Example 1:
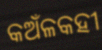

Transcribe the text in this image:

କଅଁଳକହୀ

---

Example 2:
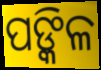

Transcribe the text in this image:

ପଙ୍କିଳ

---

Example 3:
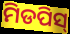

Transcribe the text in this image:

ମିଡପିସ୍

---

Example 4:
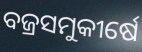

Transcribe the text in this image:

ବଜ୍ରସମୁକୀର୍ଷେ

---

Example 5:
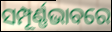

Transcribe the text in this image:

ସମ୍ପୂର୍ଣ୍ଣଭାବରେ